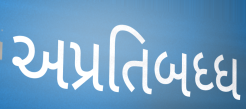
અપ્રતિબધ્ધ